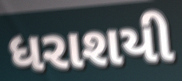
ધરાશયી